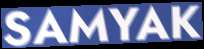
SAMYAK